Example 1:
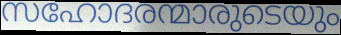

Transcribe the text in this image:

സഹോദരന്മാരുടെയും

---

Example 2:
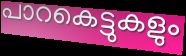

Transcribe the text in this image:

പാറകെട്ടുകളും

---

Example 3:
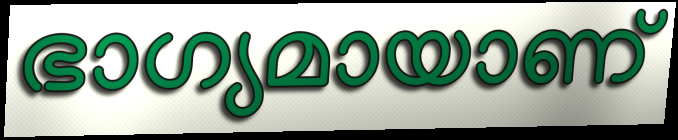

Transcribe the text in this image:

ഭാഗ്യമായാണ്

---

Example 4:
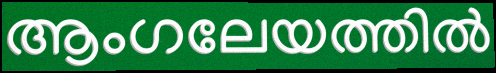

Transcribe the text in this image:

ആംഗലേയത്തിൽ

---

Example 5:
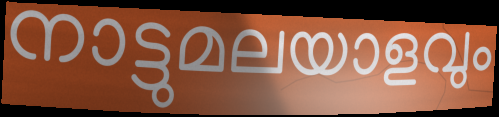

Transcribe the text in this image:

നാട്ടുമലയാളവും